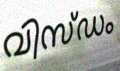
വിസ്ഡം